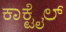
ಕಾಕ್ಟೈಲ್